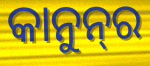
କାନୁନ୍‌ର